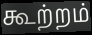
கூற்றம்